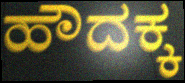
ಹೌದಕ್ಕ